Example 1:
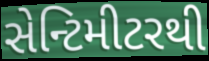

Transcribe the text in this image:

સેન્ટિમીટરથી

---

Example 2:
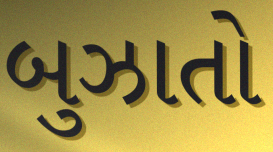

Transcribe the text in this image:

બુઝાતો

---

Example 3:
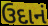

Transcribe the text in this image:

ઉદાનં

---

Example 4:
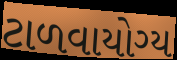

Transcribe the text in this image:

ટાળવાયોગ્ય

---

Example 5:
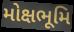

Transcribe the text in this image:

મોક્ષભૂમિ